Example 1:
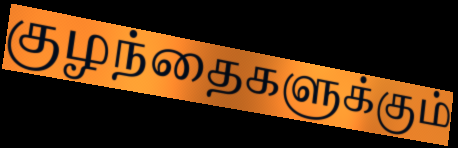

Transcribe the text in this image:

குழந்தைகளுக்கும்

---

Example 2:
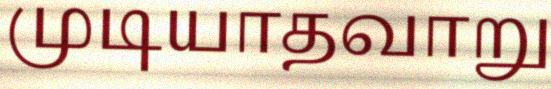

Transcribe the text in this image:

முடியாதவாறு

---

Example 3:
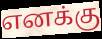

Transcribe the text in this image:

எனக்கு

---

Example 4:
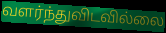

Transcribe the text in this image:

வளர்ந்துவிடவில்லை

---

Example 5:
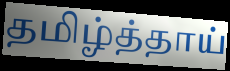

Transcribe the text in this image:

தமிழ்த்தாய்